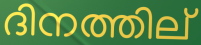
ദിനത്തില്